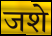
जशे